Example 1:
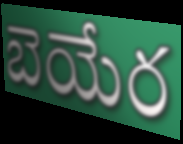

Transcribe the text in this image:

బెయేర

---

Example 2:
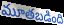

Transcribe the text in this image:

మూతబడింది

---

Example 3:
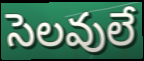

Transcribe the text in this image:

సెలవులే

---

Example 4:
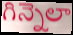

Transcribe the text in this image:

గిన్నెలా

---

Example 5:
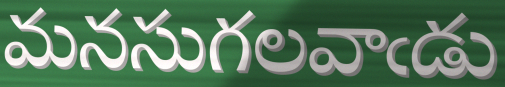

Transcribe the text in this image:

మనసుగలవాఁడు